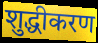
शुद्धीकरण